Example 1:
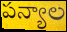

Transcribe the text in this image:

పన్యాల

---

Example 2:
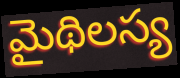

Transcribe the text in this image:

మైథిలస్య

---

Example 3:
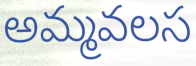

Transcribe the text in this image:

అమ్మవలస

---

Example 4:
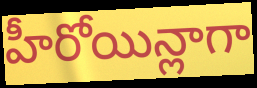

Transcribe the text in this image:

హీరోయిన్లాగా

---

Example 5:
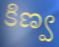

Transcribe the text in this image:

కిణ్వ